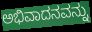
ಅಭಿವಾದನವನ್ನು